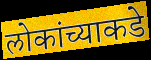
लोकांच्याकडे